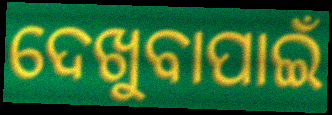
ଦେଖୁବାପାଇଁ